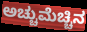
ಅಚ್ಚುಮೆಚ್ಚಿನ